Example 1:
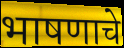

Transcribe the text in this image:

भाषणाचे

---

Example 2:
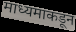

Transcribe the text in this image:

माध्यमाकडून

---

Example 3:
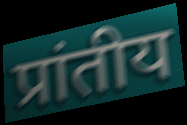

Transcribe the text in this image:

प्रांतीय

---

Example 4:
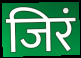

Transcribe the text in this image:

जिरं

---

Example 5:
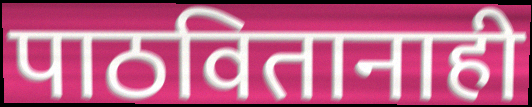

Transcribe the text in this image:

पाठवितानाही